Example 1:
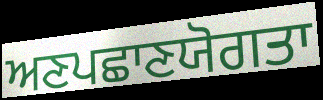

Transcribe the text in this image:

ਅਣਪਛਾਣਯੋਗਤਾ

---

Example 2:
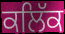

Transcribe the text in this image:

ਕਲਿੱਕ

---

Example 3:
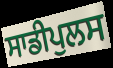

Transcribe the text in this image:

ਸਾਡੀਪੁਲਸ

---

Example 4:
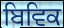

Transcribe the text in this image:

ਬਿਵਿਕ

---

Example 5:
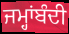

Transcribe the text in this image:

ਜਮ੍ਹਾਂਬੰਦੀ